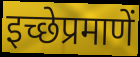
इच्छेप्रमाणें